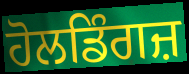
ਹੋਲਡਿੰਗਜ਼